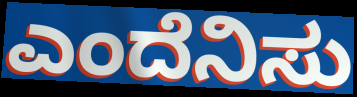
ಎಂದೆನಿಸು